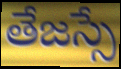
తేజస్సే